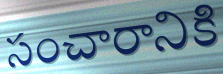
సంచారానికి